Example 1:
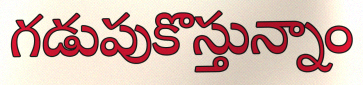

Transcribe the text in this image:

గడుపుకొస్తున్నాం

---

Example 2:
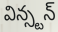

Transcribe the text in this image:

విన్స్టన్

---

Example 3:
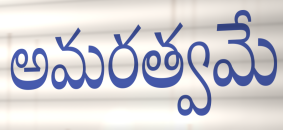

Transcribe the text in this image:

అమరత్వమే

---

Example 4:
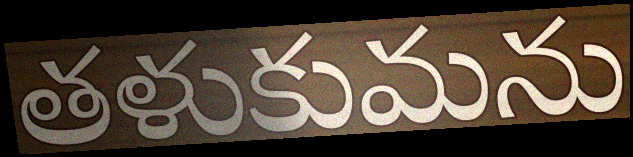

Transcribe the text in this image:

తళుకుమను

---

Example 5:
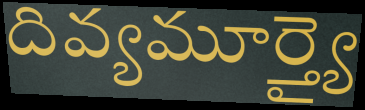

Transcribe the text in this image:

దివ్యమూర్త్యై